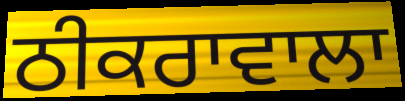
ਠੀਕਰਾਵਾਲਾ